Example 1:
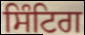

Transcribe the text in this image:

ਸਿੰਟਿਗ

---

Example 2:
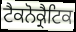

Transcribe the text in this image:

ਟੈਕਨੋਕ੍ਰੈਟਿਕ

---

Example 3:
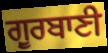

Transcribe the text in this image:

ਗੂਰਬਾਣੀ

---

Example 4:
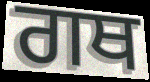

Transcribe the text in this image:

ਗਥ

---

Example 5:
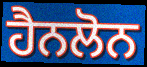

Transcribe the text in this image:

ਹੈਨਲੋਨ